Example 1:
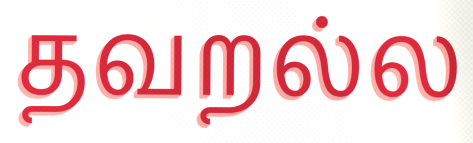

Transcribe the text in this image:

தவறல்ல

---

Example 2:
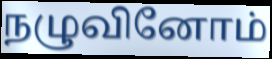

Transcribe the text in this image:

நழுவினோம்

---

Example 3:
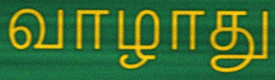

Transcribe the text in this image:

வாழாது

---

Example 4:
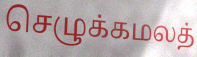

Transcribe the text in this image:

செழுக்கமலத்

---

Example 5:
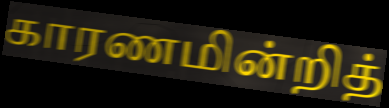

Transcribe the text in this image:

காரணமின்றித்